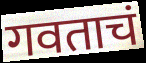
गवताचं